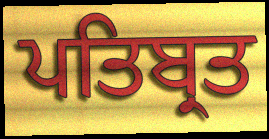
ਪਤਿਬ੍ਰਤ